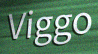
Viggo